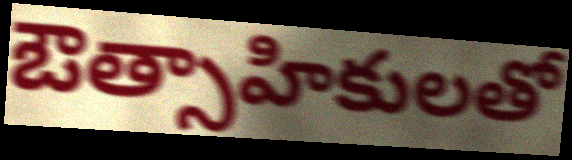
ఔత్సాహికులతో